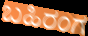
ಬಹಿರಂಗ